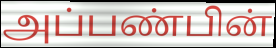
அப்பண்பின்